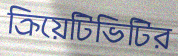
ক্রিয়েটিভিটির